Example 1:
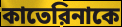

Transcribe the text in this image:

কাতেরিনাকে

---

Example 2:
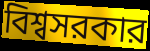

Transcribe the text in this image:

বিশ্বসরকার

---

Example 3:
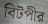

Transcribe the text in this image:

বিটপীর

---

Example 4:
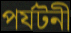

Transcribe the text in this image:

পর্যটনী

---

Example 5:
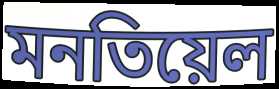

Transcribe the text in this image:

মনতিয়েল